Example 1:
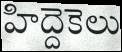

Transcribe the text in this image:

హిద్దెకెలు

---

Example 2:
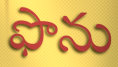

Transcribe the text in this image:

ఫొను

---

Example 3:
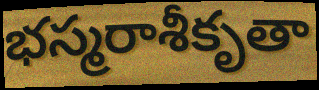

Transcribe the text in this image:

భస్మరాశీకృతా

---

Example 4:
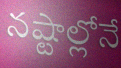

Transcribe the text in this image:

నష్టాల్లోనే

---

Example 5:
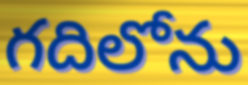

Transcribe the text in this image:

గదిలోను